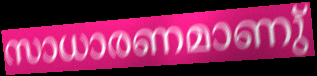
സാധാരണമാണു്